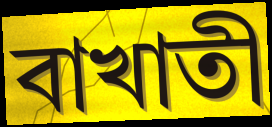
বাখাতী